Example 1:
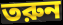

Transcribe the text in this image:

তরুন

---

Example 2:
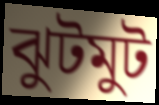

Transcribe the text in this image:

ঝুটমুট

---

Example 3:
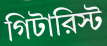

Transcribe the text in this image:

গিটারিস্ট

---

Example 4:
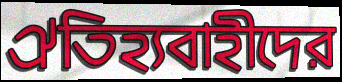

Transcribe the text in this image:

ঐতিহ্যবাহীদের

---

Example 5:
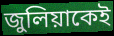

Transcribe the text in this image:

জুলিয়াকেই